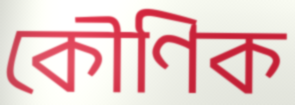
কৌণিক